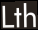
Lth